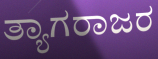
ತ್ಯಾಗರಾಜರ